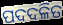
ପଦଦଳିତ